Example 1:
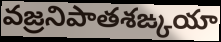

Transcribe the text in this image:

వజ్రనిపాతశఙ్కయా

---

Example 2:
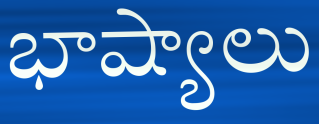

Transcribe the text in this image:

భాష్యాలు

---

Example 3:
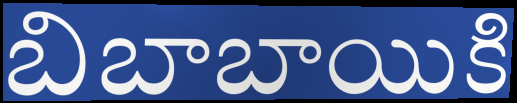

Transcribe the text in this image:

బిబాబాయికి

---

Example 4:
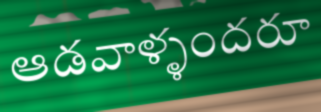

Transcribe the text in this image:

ఆడవాళ్ళందరూ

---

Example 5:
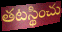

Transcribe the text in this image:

తటస్థించు